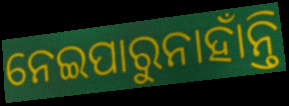
ନେଇପାରୁନାହାଁନ୍ତି